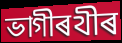
ভাগীৰথীৰ